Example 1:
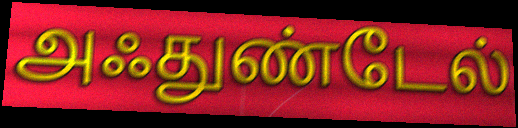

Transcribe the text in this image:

அஃதுண்டேல்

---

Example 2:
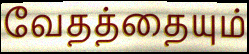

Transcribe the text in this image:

வேதத்தையும்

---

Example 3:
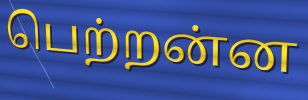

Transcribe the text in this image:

பெற்றன்ன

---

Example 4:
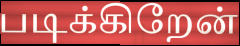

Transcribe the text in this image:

படிக்கிறேன்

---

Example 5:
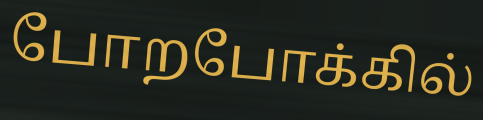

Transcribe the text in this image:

போறபோக்கில்